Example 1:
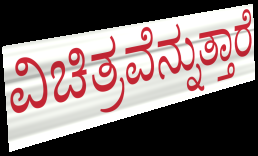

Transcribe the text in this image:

ವಿಚಿತ್ರವೆನ್ನುತ್ತಾರೆ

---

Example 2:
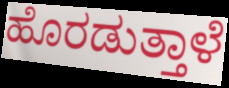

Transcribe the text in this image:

ಹೊರಡುತ್ತಾಳೆ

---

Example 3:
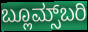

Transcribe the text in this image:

ಬ್ಲೂಮ್ಸ್‌ಬರಿ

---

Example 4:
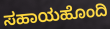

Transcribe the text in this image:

ಸಹಾಯಹೊಂದಿ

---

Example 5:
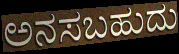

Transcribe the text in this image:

ಅನಸಬಹುದು